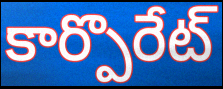
కార్పొరేట్